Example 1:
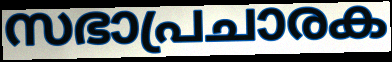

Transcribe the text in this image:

സഭാപ്രചാരക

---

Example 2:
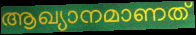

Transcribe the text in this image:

ആഖ്യാനമാണത്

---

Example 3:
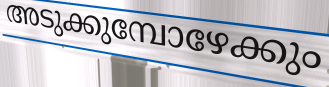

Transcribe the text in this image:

അടുക്കുമ്പോഴേക്കും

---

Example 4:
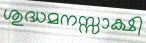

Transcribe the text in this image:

ശുദ്ധമനസ്സാക്ഷി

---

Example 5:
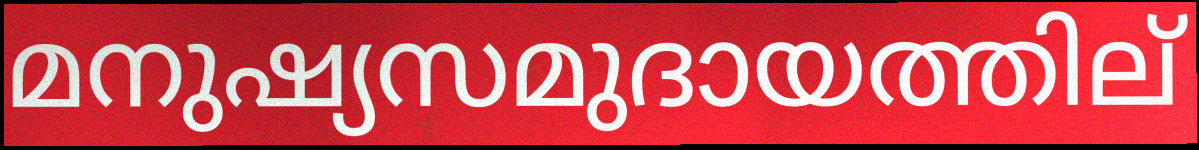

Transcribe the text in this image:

മനുഷ്യസമുദായത്തില്